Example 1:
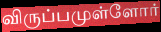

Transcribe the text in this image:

விருப்பமுள்ளோர்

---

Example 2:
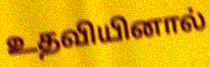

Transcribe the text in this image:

உதவியினால்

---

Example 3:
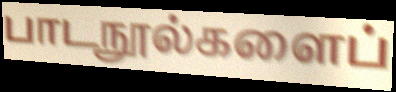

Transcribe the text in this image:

பாடநூல்களைப்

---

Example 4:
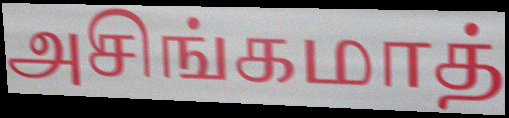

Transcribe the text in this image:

அசிங்கமாத்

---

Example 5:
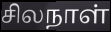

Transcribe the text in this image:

சிலநாள்